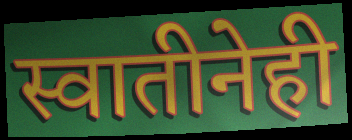
स्वातीनेही